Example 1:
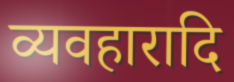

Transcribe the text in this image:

व्यवहारादि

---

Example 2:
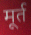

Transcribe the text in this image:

मूर्त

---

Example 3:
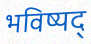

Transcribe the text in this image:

भविष्यद्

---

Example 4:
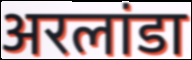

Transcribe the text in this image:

अरलांडा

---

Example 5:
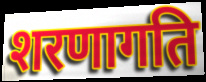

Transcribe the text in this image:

शरणागति